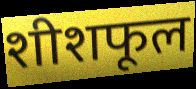
शीशफूल